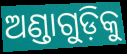
ଅଣ୍ଡାଗୁଡ଼ିକୁ